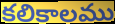
కలికాలము